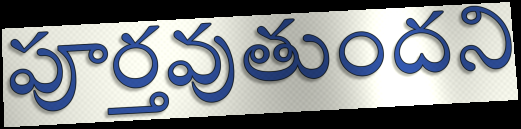
పూర్తవుతుందని